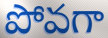
పోవగా